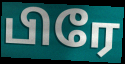
பிரே